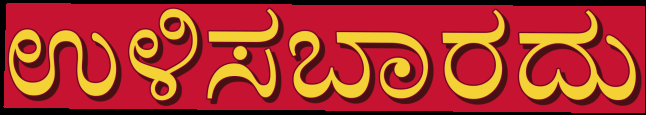
ಉಳಿಸಬಾರದು